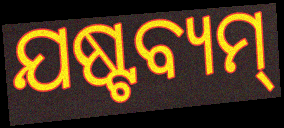
ଯଷ୍ଟବ୍ୟମ୍